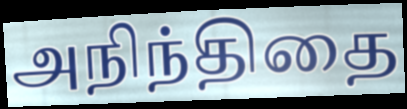
அநிந்திதை